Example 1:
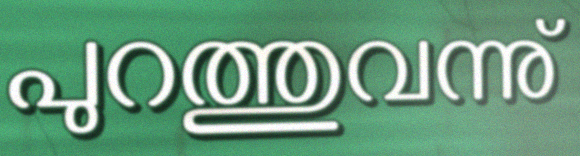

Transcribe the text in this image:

പുറത്തുവന്നു്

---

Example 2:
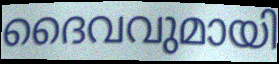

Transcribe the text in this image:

ദൈവവുമായി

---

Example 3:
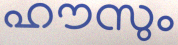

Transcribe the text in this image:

ഹൗസും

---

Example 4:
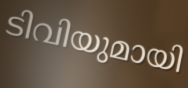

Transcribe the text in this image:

ടിവിയുമായി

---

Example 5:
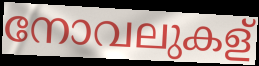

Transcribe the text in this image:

നോവലുകള്